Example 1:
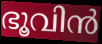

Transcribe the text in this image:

ഭൂവിൻ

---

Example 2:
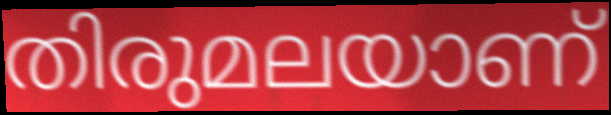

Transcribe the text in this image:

തിരുമലയാണ്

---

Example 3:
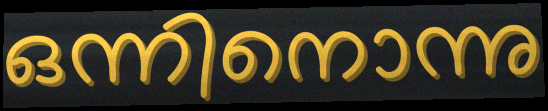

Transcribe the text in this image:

ഒന്നിനൊന്നു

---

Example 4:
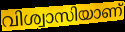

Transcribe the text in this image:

വിശ്വാസിയാണ്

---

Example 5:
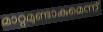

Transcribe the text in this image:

മാറ്റമുണ്ടാകുമെന്ന്